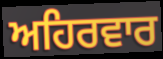
ਅਹਿਰਵਾਰ